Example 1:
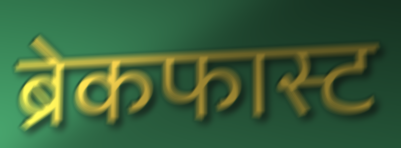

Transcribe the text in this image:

ब्रेकफास्ट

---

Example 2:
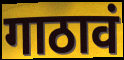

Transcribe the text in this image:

गाठावं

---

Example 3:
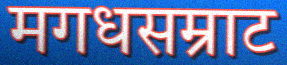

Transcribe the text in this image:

मगधसम्राट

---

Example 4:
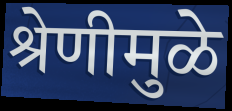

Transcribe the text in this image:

श्रेणीमुळे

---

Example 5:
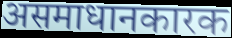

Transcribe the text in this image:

असमाधानकारक